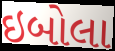
ઇબોલા